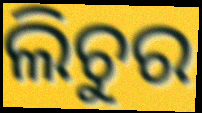
ଲିଚୁର